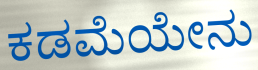
ಕಡಮೆಯೇನು